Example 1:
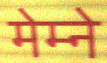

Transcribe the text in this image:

मेम्ने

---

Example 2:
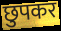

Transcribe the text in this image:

छुपकर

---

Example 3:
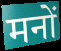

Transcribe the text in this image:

मनों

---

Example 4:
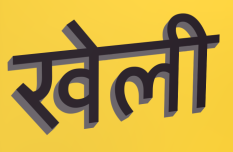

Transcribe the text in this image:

खेली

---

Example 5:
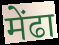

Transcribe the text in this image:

मेंढा